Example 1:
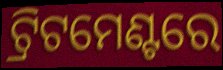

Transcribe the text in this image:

ଟ୍ରିଟମେଣ୍ଟରେ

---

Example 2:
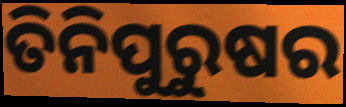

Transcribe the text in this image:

ତିନିପୁରୁଷର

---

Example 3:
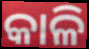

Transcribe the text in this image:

କାଳି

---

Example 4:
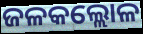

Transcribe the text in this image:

ଜଳକଲ୍ଲୋଳ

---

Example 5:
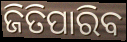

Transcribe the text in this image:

ଜିତିପାରିବ